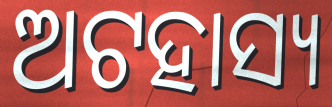
ଅଟହାସ୍ୟ